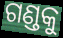
ଗଣ୍ଡକୁ